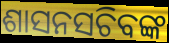
ଶାସନସଚିବଙ୍କ